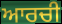
ਆਰਚੀ